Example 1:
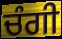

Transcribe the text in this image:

ਚੰਗੀ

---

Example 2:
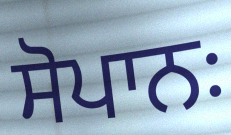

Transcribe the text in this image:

ਸੋਪਾਨਃ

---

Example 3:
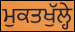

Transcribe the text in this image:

ਮੁਕਤਖੁੱਲ੍ਹੇ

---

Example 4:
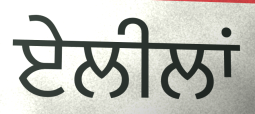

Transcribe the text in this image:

ਏਲੀਲਾਂ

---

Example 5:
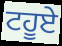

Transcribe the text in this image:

ਟਹੂਏ